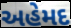
અહેમદ